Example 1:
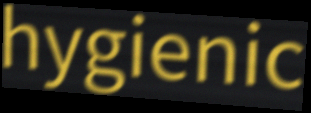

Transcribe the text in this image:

hygienic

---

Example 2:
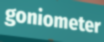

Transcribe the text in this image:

goniometer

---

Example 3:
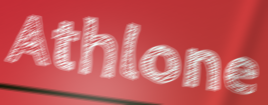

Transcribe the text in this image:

Athlone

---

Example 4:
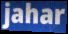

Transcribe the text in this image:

jahar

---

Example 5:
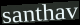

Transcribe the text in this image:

santhav